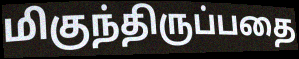
மிகுந்திருப்பதை